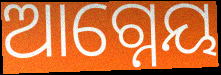
ଆଗ୍ନେୟ